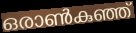
ഒരാൺകുഞ്ഞ്